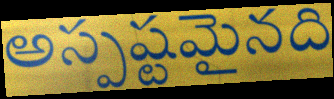
అస్పష్టమైనది